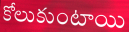
కోలుకుంటాయి